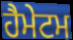
ਹੈਮੇਟਮ